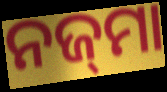
ନଜ୍‌ମା